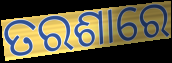
ତରଶାରେ